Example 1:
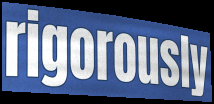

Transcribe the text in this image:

rigorously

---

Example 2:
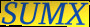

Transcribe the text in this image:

SUMX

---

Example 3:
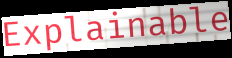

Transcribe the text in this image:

Explainable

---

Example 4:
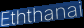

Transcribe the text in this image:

Eththanai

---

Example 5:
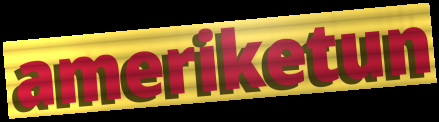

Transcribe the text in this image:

ameriketun